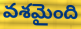
వశమైంది